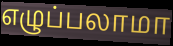
எழுப்பலாமா